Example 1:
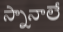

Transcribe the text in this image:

స్నానాలే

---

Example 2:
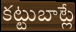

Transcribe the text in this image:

కట్టుబాట్లే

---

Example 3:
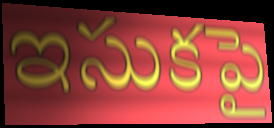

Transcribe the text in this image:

ఇసుకపై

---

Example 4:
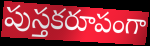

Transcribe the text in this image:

పుస్తకరూపంగా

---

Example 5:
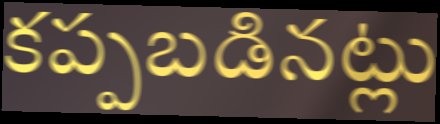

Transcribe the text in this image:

కప్పబడినట్లు